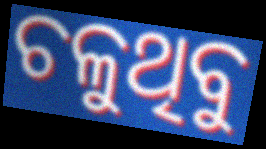
ଚଳୁଥିବୁ